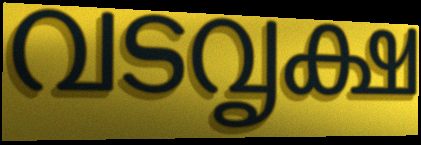
വടവൃക്ഷ